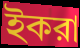
ইকরা